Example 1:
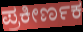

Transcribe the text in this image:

ಪ್ರಕೀರ್ಣಕ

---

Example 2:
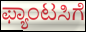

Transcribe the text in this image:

ಫ್ಯಾಂಟಸಿಗೆ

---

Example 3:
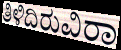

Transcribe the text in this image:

ತಿಳಿದಿರುವಿರಾ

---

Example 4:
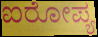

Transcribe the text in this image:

ಐರೋಪ್ಯ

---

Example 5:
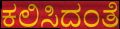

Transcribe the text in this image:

ಕಲಿಸಿದಂತೆ